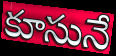
కూసునే